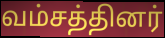
வம்சத்தினர்